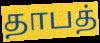
தாபத்